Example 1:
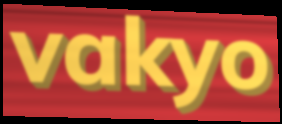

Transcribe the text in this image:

vakyo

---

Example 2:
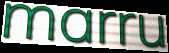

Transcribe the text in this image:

marru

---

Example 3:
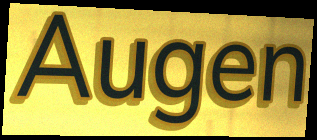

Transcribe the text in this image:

Augen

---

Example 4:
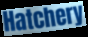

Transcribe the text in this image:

Hatchery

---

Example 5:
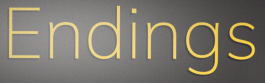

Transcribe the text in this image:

Endings